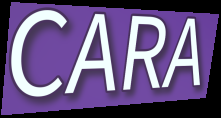
CARA